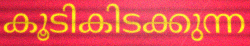
കൂടികിടക്കുന്ന